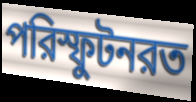
পরিস্ফুটনরত